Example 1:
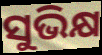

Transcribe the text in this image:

ସୁଭିକ୍ଷ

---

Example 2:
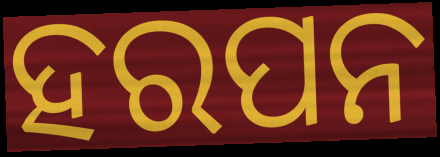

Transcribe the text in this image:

ହରପନ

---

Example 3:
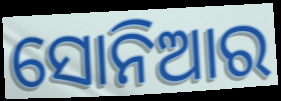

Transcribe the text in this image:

ସୋନିଆର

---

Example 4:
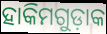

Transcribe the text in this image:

ହାକିମଗୁଡ଼ାକ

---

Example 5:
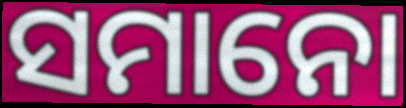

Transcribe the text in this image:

ସମାନୋ